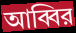
আব্বির